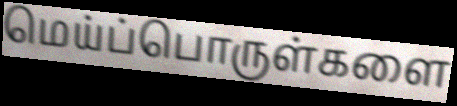
மெய்ப்பொருள்களை